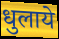
धुलाये